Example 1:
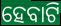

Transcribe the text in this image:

ହେବାଟି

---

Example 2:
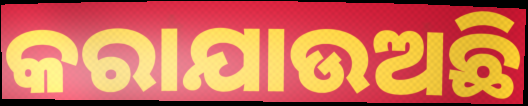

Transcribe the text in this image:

କରାଯାଉଅଛି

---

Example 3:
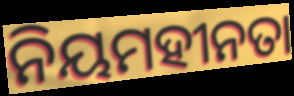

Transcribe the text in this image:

ନିୟମହୀନତା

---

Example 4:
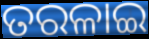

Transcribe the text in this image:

ତରଳାଇ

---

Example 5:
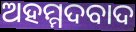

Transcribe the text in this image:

ଅହମ୍ମଦବାଦ